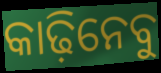
କାଢ଼ିନେବୁ